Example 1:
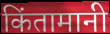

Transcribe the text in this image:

किंतामानी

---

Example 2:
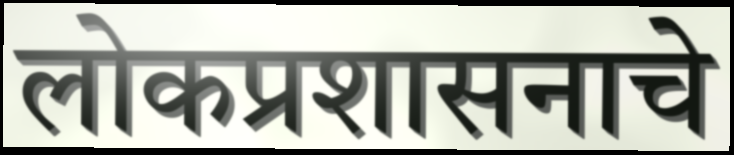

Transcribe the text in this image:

लोकप्रशासनाचे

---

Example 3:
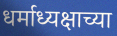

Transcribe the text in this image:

धर्माध्यक्षाच्या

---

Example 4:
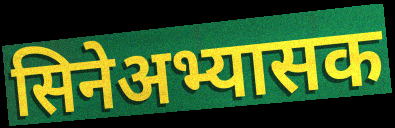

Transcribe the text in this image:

सिनेअभ्यासक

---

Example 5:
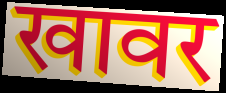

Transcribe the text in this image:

खावर